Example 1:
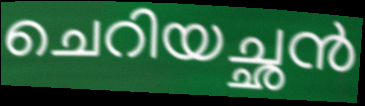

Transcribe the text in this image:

ചെറിയച്ഛൻ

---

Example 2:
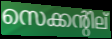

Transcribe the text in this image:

സെക്കന്റില്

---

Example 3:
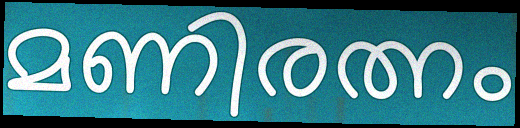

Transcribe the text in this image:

മണിരത്നം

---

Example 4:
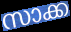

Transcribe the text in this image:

സാക്ക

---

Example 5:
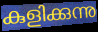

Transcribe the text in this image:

കുളിക്കുന്നു